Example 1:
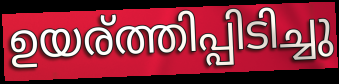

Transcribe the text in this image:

ഉയര്ത്തിപ്പിടിച്ചു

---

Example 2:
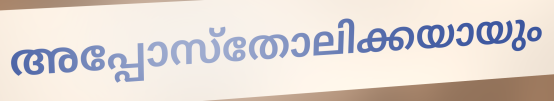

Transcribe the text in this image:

അപ്പോസ്തോലിക്കയായും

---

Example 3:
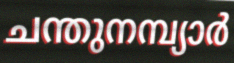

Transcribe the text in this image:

ചന്തുനമ്പ്യാർ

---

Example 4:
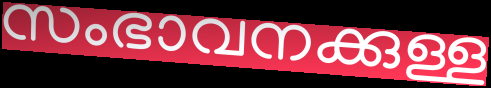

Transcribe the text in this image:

സംഭാവനക്കുള്ള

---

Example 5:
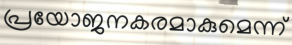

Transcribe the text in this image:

പ്രയോജനകരമാകുമെന്ന്